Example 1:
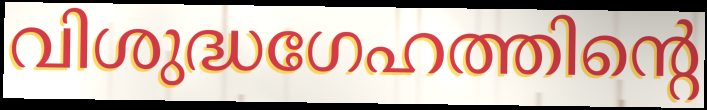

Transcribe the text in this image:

വിശുദ്ധഗേഹത്തിന്റെ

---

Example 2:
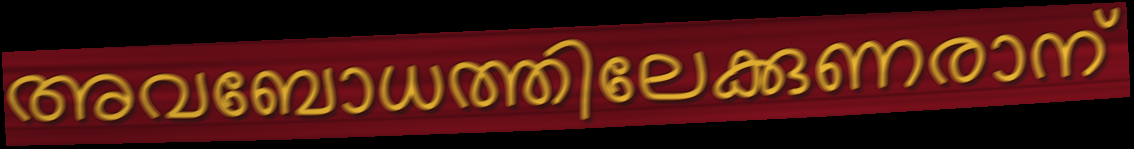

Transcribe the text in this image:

അവബോധത്തിലേക്കുണരാന്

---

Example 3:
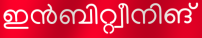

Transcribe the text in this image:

ഇൻബിറ്റ്വീനിങ്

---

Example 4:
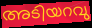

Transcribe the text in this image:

അടിയറവു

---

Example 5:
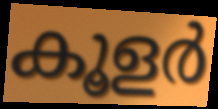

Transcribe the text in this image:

കൂളർ